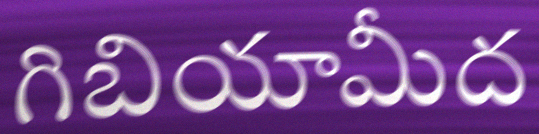
గిబియామీద